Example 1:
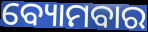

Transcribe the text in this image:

ବ୍ୟୋମବାର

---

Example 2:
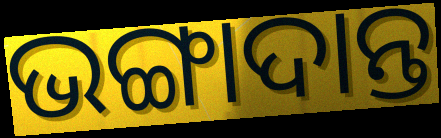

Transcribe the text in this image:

ଭଙ୍ଗାଦାନ୍ତ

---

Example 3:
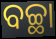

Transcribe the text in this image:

ବଚ୍ଛା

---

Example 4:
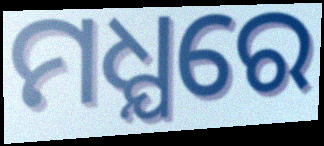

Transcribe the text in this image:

ମଧ୍ଯରେ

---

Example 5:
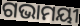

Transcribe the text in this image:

ଗଭାମୟୀ